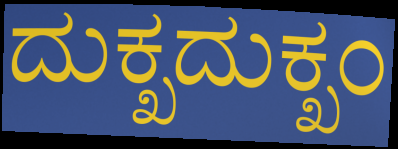
ದುಕ್ಖದುಕ್ಖಂ